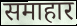
समाहार